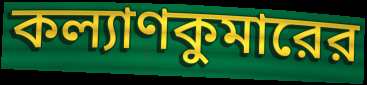
কল্যাণকুমারের